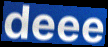
deee